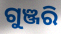
ଗୁଞ୍ଜରି